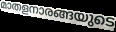
മാതളനാരങ്ങയുടെ